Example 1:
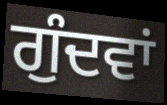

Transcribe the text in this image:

ਗੁੰਦਵਾਂ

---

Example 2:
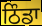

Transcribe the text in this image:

ਠਿੰਡਾ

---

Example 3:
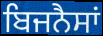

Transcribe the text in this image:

ਬਿਜਨੈਸਾਂ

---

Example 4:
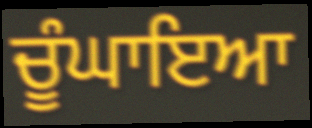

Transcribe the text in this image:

ਚੂੰਘਾਇਆ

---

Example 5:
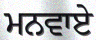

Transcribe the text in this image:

ਮਨਵਾਏ